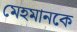
মেহমানকে